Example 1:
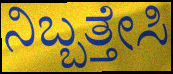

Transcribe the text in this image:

ನಿಬ್ಬತ್ತೇಸಿ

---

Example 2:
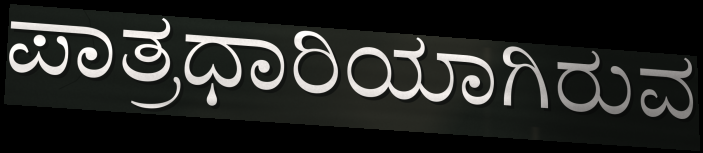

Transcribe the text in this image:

ಪಾತ್ರಧಾರಿಯಾಗಿರುವ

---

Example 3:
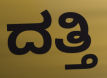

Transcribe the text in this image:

ದತ್ತಿ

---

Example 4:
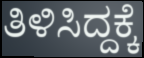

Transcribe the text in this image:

ತಿಳಿಸಿದ್ದಕ್ಕೆ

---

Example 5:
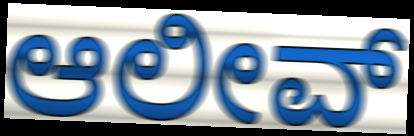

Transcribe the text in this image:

ಆಲೀವ್